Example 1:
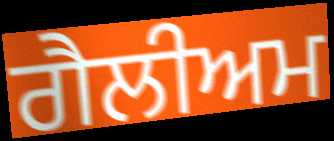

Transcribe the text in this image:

ਗੈਲੀਅਮ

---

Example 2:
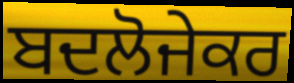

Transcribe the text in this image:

ਬਦਲੋਜੇਕਰ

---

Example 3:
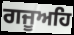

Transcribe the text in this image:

ਗਜੂਅਹਿ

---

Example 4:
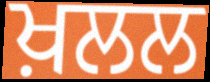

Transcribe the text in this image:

ਖ਼ਲਲ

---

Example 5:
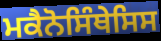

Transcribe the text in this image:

ਮਕੈਨੋਸਿੰਥੇਸਿਸ